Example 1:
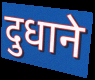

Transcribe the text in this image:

दुधाने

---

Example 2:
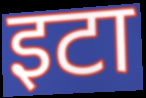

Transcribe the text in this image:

इटा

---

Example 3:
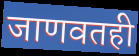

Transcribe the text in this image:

जाणवतही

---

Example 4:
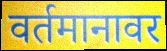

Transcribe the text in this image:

वर्तमानावर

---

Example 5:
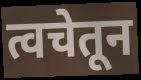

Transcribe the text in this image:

त्वचेतून